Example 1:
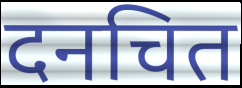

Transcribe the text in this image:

दनचित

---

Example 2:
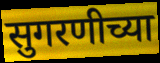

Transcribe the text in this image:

सुगरणीच्या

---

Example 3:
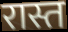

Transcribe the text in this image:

रास्त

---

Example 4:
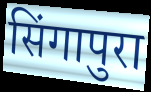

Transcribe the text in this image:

सिंगापुरा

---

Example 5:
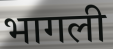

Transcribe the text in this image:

भागली